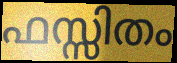
ഫസ്സിതം